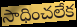
సాధించలేక